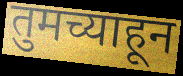
तुमच्याहून